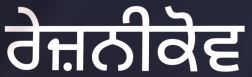
ਰੇਜ਼ਨੀਕੋਵ